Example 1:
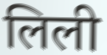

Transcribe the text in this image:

लिली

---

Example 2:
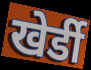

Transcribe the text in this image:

खेर्डी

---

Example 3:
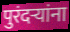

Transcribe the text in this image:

पुरंदऱ्यांना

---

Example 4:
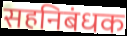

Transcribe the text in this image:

सहनिबंधक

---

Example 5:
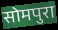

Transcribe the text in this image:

सोमपुरा